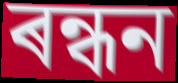
ৰন্ধন